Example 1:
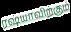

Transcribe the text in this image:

ரஷ்யாவிற்கும்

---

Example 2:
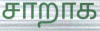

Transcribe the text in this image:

சாறாக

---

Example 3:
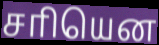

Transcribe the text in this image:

சரியென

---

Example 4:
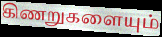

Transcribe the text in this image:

கிணறுகளையும்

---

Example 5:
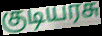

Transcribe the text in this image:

குடியரசு